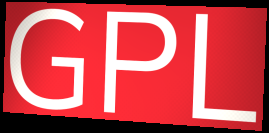
GPL